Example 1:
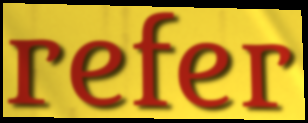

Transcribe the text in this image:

refer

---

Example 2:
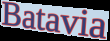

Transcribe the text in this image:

Batavia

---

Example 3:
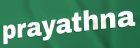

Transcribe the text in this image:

prayathna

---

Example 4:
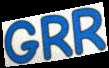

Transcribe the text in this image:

GRR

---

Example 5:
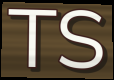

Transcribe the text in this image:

TS